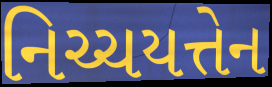
નિચ્ચયત્તેન